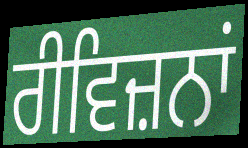
ਰੀਵਿਜ਼ਨਾਂ